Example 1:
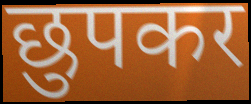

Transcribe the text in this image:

छुपकर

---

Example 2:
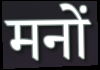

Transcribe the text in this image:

मनों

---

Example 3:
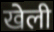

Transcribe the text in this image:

खेली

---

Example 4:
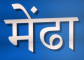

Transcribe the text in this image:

मेंढा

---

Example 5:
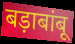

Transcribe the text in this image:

बड़ाबांबू